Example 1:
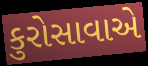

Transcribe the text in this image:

કુરોસાવાએ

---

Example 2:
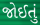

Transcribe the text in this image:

જોઈતું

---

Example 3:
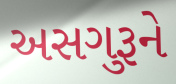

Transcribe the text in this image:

અસગુરૂને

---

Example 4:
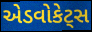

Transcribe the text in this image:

એડવોકેટ્સ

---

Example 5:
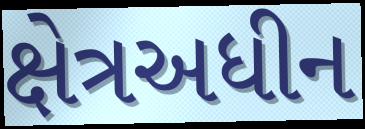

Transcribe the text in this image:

ક્ષેત્રઅધીન